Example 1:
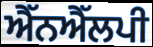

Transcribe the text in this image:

ਐੱਨਐੱਲਪੀ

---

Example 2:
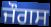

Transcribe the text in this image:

ਜੌਗਸ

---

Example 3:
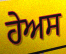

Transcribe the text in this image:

ਹੇਅਸ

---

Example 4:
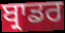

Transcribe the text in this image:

ਬ੍ਰਾਡਰ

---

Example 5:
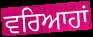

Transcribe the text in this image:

ਵਰਿਆਹਾਂ